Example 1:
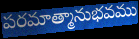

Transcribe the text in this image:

పరమాత్మానుభవము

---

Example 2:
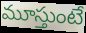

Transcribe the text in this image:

మూస్తుంటే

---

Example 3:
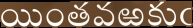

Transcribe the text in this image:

యింతవఱకుఁ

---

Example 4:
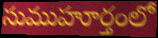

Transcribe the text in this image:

సుముహూర్తంలో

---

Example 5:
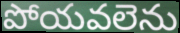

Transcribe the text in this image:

పోయవలెను